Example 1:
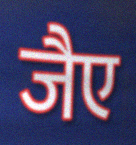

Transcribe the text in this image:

जैए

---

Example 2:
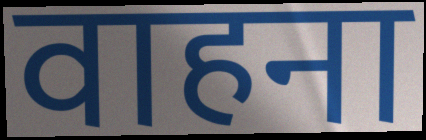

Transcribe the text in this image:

वाहना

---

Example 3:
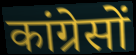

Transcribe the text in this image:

कांग्रेसों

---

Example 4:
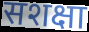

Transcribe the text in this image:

सशक्षा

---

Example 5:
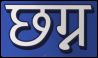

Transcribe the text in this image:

छग्न